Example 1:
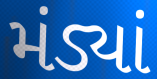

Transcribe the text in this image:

મંડ્યાં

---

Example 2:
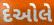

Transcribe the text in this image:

દેઓલે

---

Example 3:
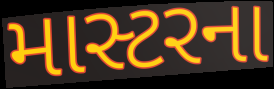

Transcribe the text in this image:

માસ્ટરના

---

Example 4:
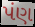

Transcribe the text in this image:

પંણ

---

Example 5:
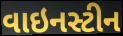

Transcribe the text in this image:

વાઇનસ્ટીન